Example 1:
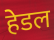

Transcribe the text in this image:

हेडल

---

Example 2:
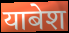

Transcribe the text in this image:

याबेश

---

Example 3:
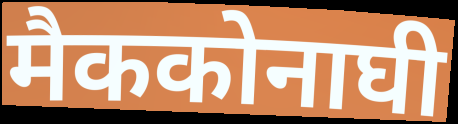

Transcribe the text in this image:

मैककोनाघी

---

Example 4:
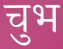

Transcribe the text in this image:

चुभ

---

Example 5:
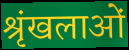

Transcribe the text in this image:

श्रृंखलाओं